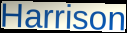
Harrison